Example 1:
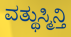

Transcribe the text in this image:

ವತ್ಥುಸ್ಮಿನ್ತಿ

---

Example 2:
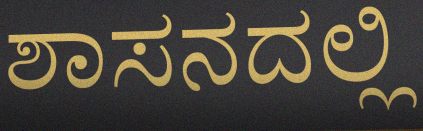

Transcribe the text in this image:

ಶಾಸನದಲ್ಲಿ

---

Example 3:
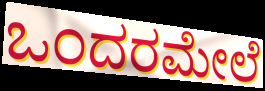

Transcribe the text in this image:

ಒಂದರಮೇಲೆ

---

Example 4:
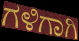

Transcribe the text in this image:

ಗಳಿಗಾಗಿ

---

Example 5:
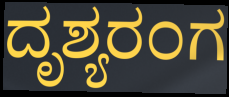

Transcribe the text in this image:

ದೃಶ್ಯರಂಗ